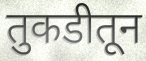
तुकडीतून